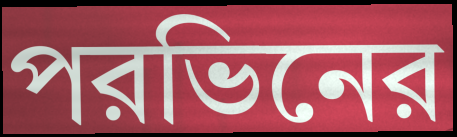
পরভিনের